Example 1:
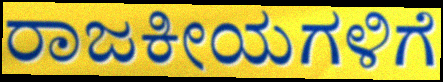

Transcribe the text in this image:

ರಾಜಕೀಯಗಳಿಗೆ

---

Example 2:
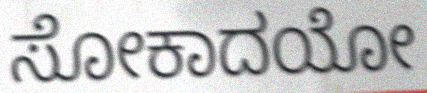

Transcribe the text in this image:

ಸೋಕಾದಯೋ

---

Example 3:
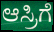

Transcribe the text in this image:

ಆಸ್ರಿಗೆ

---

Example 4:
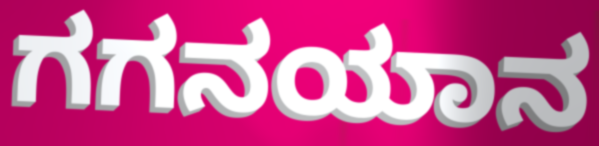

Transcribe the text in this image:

ಗಗನಯಾನ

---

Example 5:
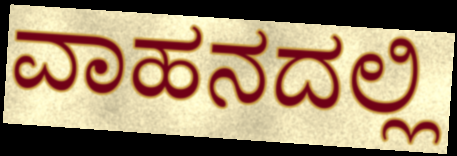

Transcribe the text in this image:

ವಾಹನದಲ್ಲಿ